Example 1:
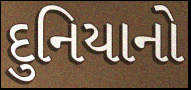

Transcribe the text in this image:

દુનિયાનો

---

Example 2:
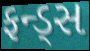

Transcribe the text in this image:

ફન્ડ્સ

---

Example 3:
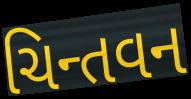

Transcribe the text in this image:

ચિન્તવન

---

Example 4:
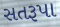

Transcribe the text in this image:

સતરૂપા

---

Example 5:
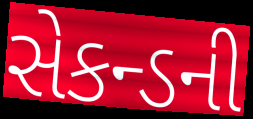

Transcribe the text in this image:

સેકન્ડની